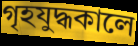
গৃহযুদ্ধকালে